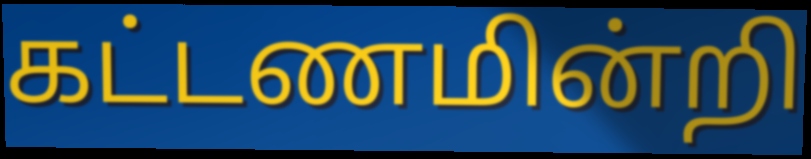
கட்டணமின்றி